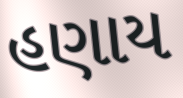
હણાય